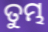
ତୁମ୍ଭ